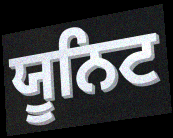
ਯੂਨਿਟ